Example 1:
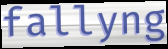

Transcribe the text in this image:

fallyng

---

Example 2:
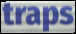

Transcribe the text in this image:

traps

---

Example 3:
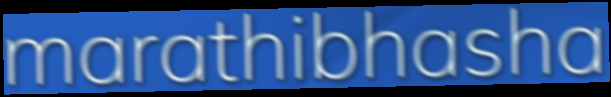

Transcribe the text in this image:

marathibhasha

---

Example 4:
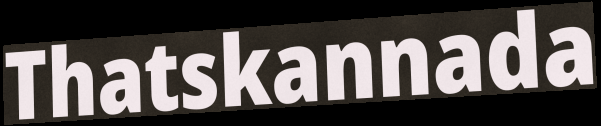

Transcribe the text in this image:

Thatskannada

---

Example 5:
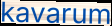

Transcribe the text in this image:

kavarum